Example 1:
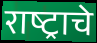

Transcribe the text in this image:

राष्ट्राचे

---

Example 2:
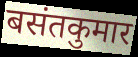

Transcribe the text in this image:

बसंतकुमार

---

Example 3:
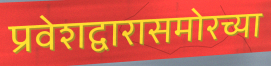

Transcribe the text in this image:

प्रवेशद्वारासमोरच्या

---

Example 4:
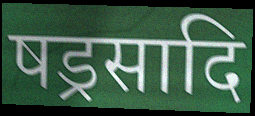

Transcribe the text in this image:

षड्रसादि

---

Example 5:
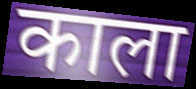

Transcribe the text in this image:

काला